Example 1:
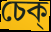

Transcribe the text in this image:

চেক্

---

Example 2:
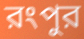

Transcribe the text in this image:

রংপুর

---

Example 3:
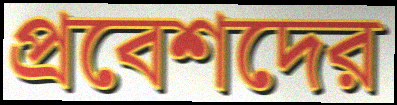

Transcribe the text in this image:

প্রবেশদের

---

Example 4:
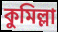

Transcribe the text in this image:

কুমিল্লা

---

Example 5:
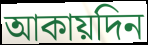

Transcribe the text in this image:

আকায়দিন